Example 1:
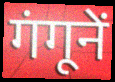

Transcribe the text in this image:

गंगूनें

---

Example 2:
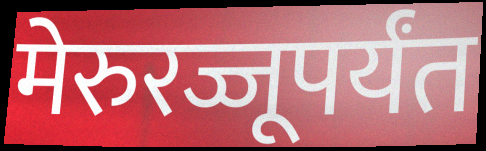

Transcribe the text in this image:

मेरुरज्जूपर्यंत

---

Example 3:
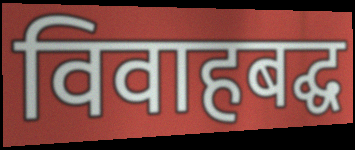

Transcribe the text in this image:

विवाहबद्घ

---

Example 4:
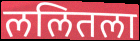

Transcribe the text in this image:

ललितला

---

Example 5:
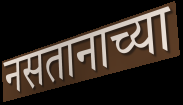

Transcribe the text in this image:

नसतानाच्या